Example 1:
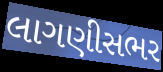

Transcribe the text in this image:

લાગણીસભર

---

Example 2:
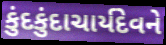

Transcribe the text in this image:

કુંદકુંદાચાર્યદેવને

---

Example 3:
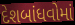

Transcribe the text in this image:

દેશબાંધવોમાં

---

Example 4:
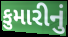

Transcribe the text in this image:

કુમારીનું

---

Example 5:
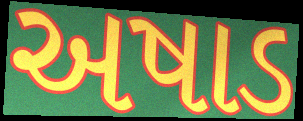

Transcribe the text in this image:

અષાડ